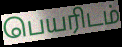
பெயரிடம்